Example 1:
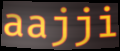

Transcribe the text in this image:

aajji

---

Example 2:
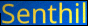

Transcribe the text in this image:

Senthil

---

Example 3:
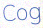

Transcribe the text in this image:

Cog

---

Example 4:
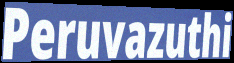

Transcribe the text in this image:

Peruvazuthi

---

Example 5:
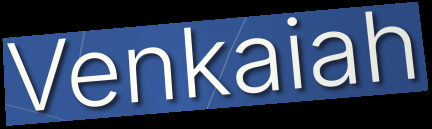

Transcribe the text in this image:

Venkaiah